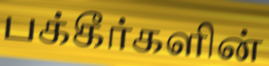
பக்கீர்களின்